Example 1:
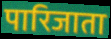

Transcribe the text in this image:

पारिजाता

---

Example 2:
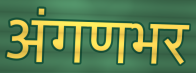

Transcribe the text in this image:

अंगणभर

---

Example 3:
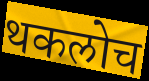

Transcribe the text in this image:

थकलोच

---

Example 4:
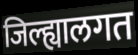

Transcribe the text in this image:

जिल्ह्यालगत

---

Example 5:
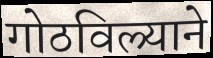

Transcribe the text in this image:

गोठविल्याने